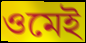
ওমেই